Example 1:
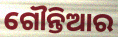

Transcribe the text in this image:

ଗୌନ୍ତିଆର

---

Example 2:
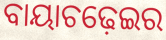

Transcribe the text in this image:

ବାୟାଚଢ଼େଇର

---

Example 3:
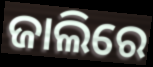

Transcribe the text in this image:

ଜାଲିରେ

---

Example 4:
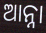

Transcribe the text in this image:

ଆନ୍ନା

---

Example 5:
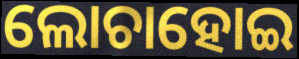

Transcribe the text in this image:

ଲୋଚାହୋଇ